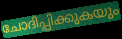
ചോദിപ്പിക്കുകയും